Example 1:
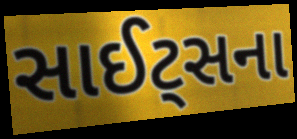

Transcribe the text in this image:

સાઈટ્સના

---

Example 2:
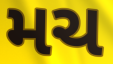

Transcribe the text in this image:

મચ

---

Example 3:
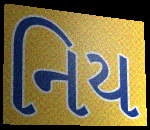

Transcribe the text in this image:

નિય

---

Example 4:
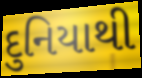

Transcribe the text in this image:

દુનિયાથી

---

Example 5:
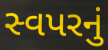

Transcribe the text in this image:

સ્વપરનું